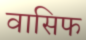
वासिफ